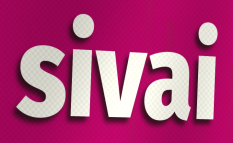
sivai